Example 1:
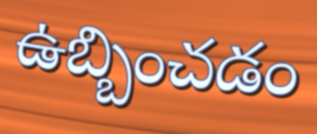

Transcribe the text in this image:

ఉబ్బించడం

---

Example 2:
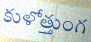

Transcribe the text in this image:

కుళోత్తుంగ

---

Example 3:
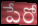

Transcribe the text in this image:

పేరో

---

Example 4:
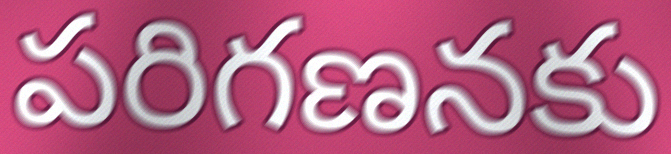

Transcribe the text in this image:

పరిగణనకు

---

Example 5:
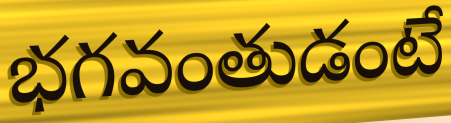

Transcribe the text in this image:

భగవంతుడంటే